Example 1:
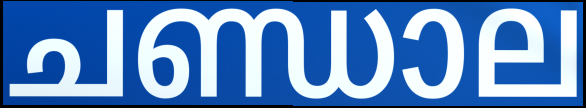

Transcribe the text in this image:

ചണ്ഡാല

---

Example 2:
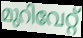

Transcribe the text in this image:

മുറിവേറ്റ്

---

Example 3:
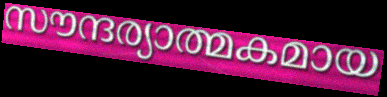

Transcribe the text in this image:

സൗന്ദര്യാത്മകമായ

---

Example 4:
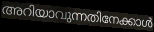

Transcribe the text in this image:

അറിയാവുന്നതിനേക്കാൾ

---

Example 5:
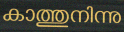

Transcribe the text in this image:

കാത്തുനിന്നു